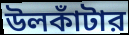
উলকাঁটার